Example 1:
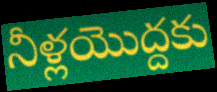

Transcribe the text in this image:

నీళ్లయొద్దకు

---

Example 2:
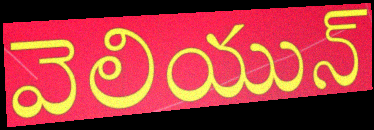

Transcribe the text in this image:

వెలియున్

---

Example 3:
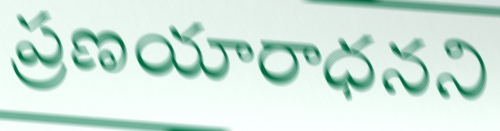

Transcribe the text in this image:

ప్రణయారాధనని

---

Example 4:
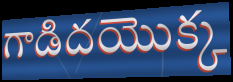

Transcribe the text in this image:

గాడిదయొక్క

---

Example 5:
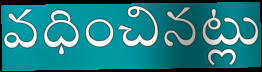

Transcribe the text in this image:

వధించినట్లు